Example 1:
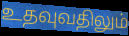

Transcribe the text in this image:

உதவுவதிலும்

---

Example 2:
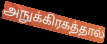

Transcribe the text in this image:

அநுக்கிரகத்தால்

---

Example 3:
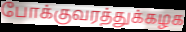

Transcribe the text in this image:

போக்குவரத்துக்கழக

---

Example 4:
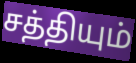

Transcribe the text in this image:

சத்தியும்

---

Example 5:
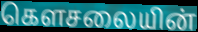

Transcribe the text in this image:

கௌசலையின்